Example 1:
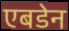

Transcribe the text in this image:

एबडेन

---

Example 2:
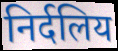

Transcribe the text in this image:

निर्दलिय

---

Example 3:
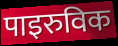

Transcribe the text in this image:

पाइरुविक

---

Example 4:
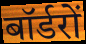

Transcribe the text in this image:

बॉर्डरों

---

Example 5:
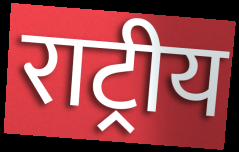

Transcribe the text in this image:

राट्रीय